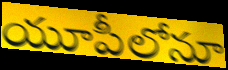
యూపీలోనూ